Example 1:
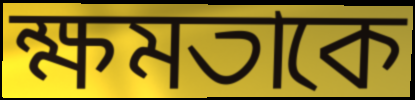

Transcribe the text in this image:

ক্ষমতাকে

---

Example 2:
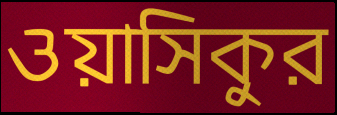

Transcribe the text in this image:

ওয়াসিকুর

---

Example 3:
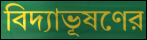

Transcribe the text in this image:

বিদ্যাভূষণের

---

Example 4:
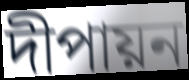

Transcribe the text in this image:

দীপায়ন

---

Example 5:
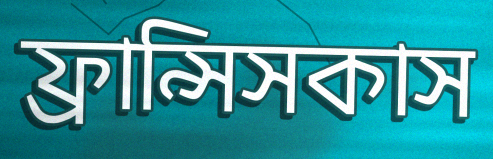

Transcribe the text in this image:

ফ্রান্সিসকাস